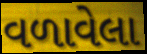
વળાવેલા